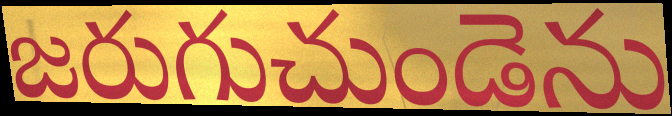
జరుగుచుండెను